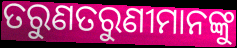
ତରୁଣତରୁଣୀମାନଙ୍କୁ